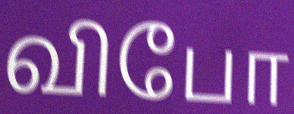
விபோ